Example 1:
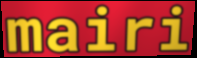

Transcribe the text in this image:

mairi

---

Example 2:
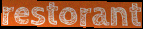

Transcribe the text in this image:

restorant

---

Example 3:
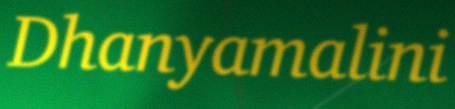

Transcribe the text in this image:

Dhanyamalini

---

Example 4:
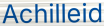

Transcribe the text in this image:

Achilleid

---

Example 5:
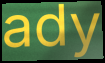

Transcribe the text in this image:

ady